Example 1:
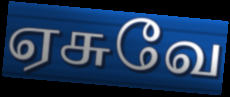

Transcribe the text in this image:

ஏசுவே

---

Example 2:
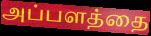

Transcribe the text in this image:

அப்பளத்தை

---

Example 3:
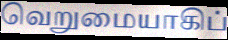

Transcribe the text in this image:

வெறுமையாகிப்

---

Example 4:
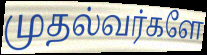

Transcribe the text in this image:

முதல்வர்களே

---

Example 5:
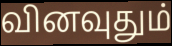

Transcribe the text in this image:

வினவுதும்